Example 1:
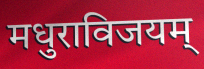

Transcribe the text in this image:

मधुराविजयम्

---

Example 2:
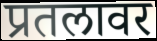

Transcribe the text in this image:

प्रतलावर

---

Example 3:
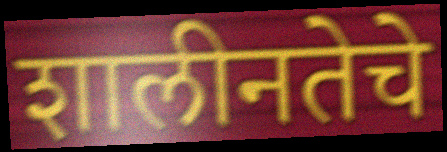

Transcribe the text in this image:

शालीनतेचे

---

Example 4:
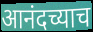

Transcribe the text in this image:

आनंदच्याच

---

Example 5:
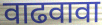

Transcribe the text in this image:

वाढवावा